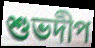
শুভদীপ